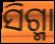
ସିଗ୍ମା